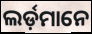
ଲର୍ଡ଼ମାନେ